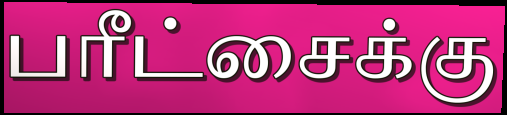
பரீட்சைக்கு